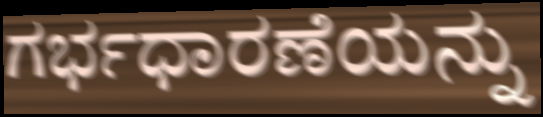
ಗರ್ಭಧಾರಣೆಯನ್ನು